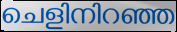
ചെളിനിറഞ്ഞ